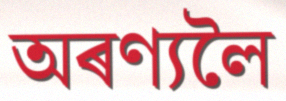
অৰণ্যলৈ